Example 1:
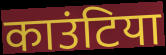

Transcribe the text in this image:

काउंटिया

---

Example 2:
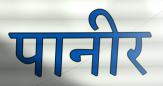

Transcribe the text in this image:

पानीर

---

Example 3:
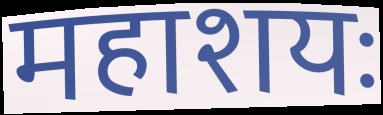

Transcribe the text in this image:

महाशयः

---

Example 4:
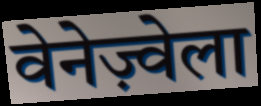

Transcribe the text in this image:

वेनेज़्वेला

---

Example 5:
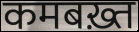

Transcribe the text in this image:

कमबख़्त